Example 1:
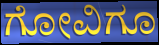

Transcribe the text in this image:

ಗೋವಿಗೂ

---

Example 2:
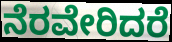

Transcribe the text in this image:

ನೆರವೇರಿದರೆ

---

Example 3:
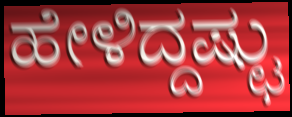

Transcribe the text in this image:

ಹೇಳಿದ್ದಷ್ಟು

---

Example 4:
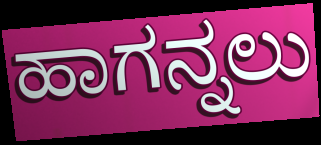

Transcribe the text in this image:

ಹಾಗನ್ನಲು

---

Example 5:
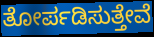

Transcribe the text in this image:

ತೋರ್ಪಡಿಸುತ್ತೇವೆ